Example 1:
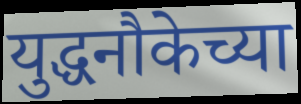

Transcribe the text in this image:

युद्धनौकेच्या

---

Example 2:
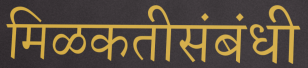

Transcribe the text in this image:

मिळकतीसंबंधी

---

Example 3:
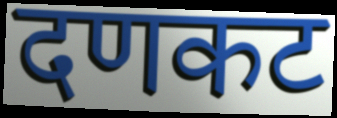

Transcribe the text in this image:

दणकट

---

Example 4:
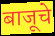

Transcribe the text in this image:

बाजूचे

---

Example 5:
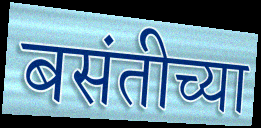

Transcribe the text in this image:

बसंतीच्या